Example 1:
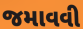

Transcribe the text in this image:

જમાવવી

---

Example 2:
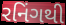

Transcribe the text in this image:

રનિંગથી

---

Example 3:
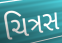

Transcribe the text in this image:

ચિત્રસ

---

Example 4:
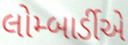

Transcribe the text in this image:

લોમ્બાર્ડીએ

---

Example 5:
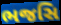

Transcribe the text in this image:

ભજસિ